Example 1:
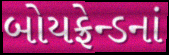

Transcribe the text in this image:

બોયફ્રેન્ડનાં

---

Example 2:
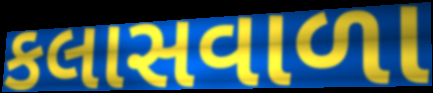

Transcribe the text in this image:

કલાસવાળા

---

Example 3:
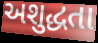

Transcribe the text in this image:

અશુદ્ધતા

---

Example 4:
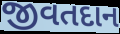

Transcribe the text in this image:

જીવતદાન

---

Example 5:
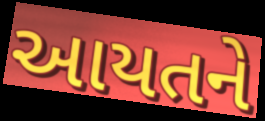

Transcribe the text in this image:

આયતને